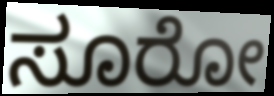
ಸೂರೋ